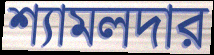
শ্যামলদার